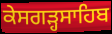
ਕੇਸਗੜ੍ਹਸਾਹਿਬ